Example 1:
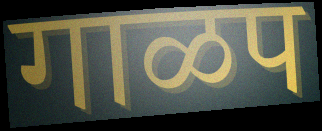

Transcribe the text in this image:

गाळप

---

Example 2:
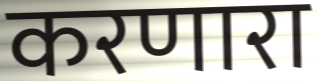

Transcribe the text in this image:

करणारा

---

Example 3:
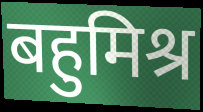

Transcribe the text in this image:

बहुमिश्र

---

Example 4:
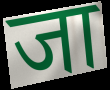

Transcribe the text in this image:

जा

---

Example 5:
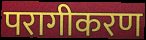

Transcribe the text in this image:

परागीकरण